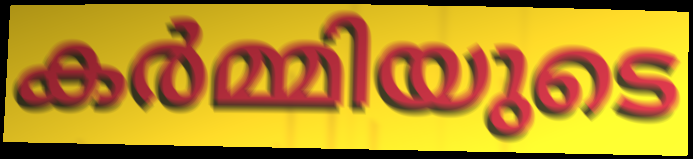
കർമ്മിയുടെ